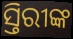
ସ୍ତିରୀଙ୍କ